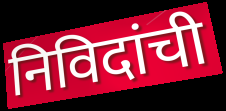
निविदांची